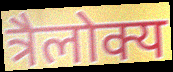
त्रैलोक्य